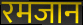
रमजान